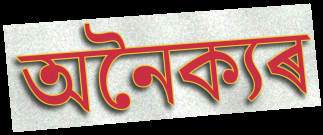
অনৈক্যৰ